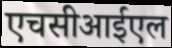
एचसीआईएल